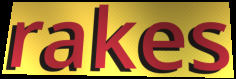
rakes